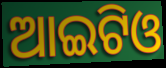
ଆଇଟିଓ